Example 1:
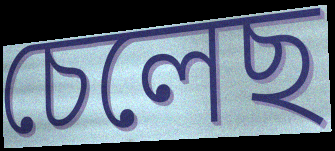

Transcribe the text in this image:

চেলেছ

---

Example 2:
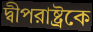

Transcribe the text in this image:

দ্বীপরাষ্ট্রকে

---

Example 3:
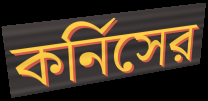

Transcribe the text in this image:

কর্নিসের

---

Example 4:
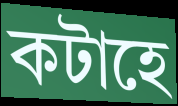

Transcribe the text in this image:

কটাহে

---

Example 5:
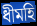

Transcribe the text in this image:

ধীমহি